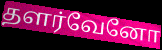
தளர்வேனோ